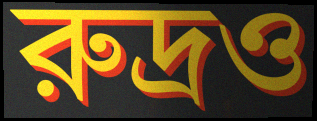
রুদ্রও